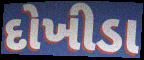
દોખીડા